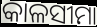
କାଳସୀମା